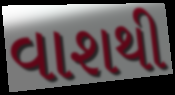
વાશથી